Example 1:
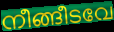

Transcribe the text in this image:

നീങ്ങീടവേ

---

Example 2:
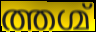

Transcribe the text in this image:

ത്തഗ്മ്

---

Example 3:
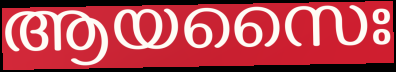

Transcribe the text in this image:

ആയസൈഃ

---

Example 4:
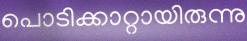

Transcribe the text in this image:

പൊടിക്കാറ്റായിരുന്നു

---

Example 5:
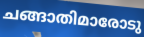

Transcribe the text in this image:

ചങ്ങാതിമാരോടു